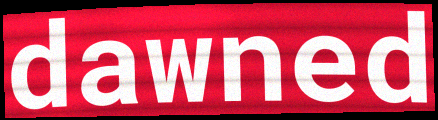
dawned